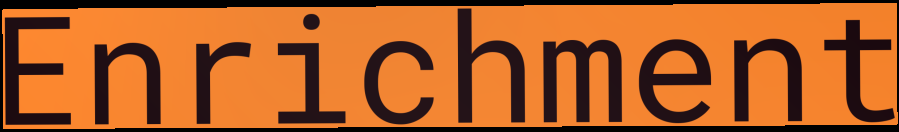
Enrichment